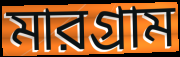
মারগ্রাম